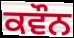
ਕਵੌਨ